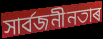
সাৰ্বজনীনতাৰ